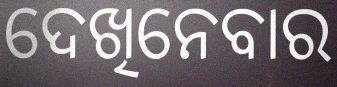
ଦେଖିନେବାର